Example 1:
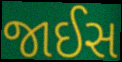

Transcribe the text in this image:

જાઈસ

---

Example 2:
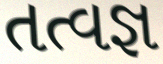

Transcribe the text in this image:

તત્વજ્ઞ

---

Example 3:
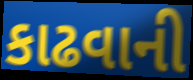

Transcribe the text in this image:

કાઢવાની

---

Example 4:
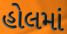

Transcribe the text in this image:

હોલમાં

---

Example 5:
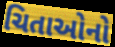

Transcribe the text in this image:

ચિતાઓનો